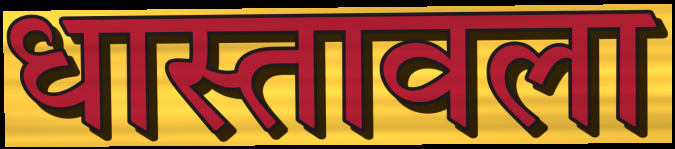
धास्तावला